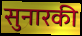
सुनारकी